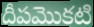
దీపమొకటి